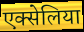
एक्सेलिया